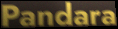
Pandara